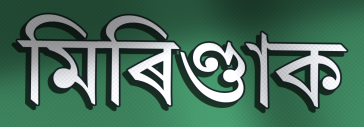
মিৰিণ্ডাক